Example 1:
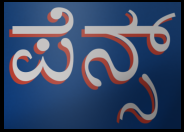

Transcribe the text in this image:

ಪೆನ್ಸ್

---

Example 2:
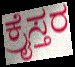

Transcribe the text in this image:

ಕ್ರೈಸ್ತರ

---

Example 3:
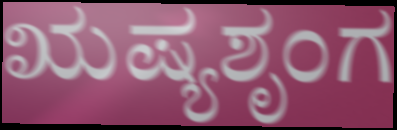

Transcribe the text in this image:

ಋಷ್ಯಶೃಂಗ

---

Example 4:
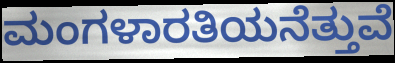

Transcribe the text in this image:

ಮಂಗಳಾರತಿಯನೆತ್ತುವೆ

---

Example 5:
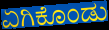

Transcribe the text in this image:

ಏಗಿಕೊಂಡು